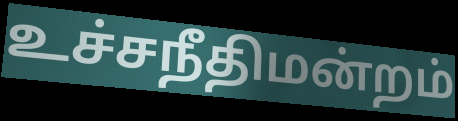
உச்சநீதிமன்றம்